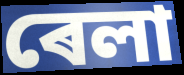
ৰেলা